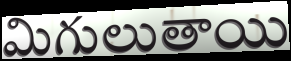
మిగులుతాయి